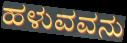
ಹಳುವವನು